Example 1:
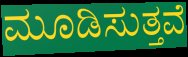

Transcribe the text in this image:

ಮೂಡಿಸುತ್ತವೆ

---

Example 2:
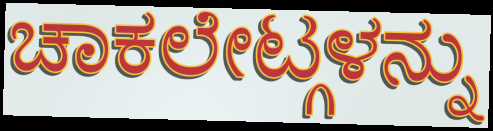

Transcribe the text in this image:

ಚಾಕಲೇಟ್ಗಳನ್ನು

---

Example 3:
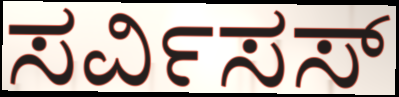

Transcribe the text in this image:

ಸರ್ವಿಸಸ್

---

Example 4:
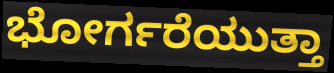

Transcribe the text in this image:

ಭೋರ್ಗರೆಯುತ್ತಾ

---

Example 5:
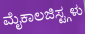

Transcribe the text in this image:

ಮೈಕಾಲಜಿಸ್ಟ್ಗಳು